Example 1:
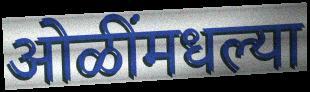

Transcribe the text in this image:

ओळींमधल्या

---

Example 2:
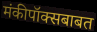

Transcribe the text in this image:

मंकीपॉक्सबाबत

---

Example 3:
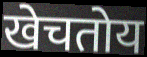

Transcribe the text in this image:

खेचतोय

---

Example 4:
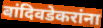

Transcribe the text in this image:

बांदिवडेकरांना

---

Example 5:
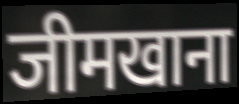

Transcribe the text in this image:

जीमखाना